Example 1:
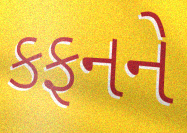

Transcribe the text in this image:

કફનને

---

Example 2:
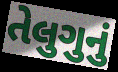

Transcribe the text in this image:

તેલુગુનું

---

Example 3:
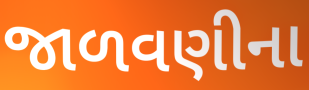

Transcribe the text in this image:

જાળવણીના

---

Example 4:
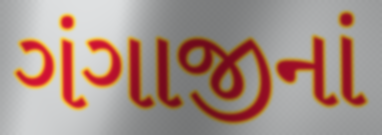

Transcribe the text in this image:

ગંગાજીનાં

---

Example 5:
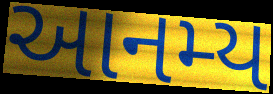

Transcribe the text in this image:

આનમ્ય